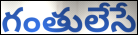
గంతులేసే